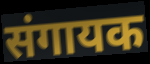
संगायक